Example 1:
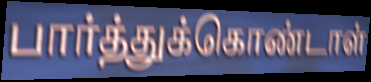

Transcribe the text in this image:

பார்த்துக்கொண்டாள்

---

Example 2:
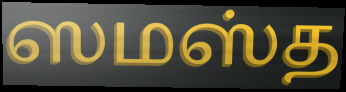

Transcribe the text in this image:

ஸமஸ்த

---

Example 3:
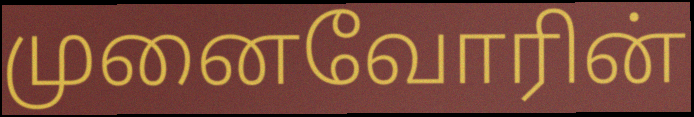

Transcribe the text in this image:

முனைவோரின்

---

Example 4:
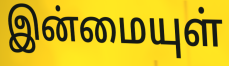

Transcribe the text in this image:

இன்மையுள்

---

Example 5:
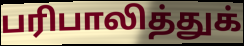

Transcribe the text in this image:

பரிபாலித்துக்